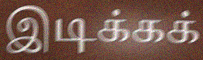
இடிக்கக்